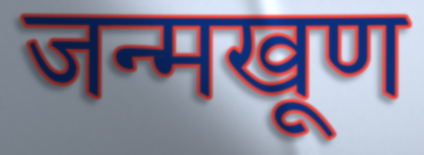
जन्मखूण